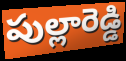
పుల్లారెడ్డి